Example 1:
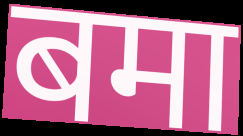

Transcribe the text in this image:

बमा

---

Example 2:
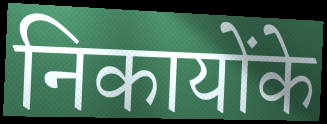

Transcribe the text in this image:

निकायोंके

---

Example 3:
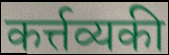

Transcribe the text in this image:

कर्त्तव्यकी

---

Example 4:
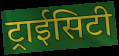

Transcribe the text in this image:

ट्राईसिटी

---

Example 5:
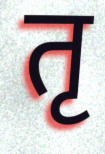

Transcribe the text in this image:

तृ